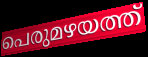
പെരുമഴയത്ത്